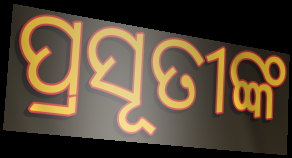
ପ୍ରସୂତୀଙ୍କ